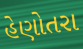
હેણોતરા